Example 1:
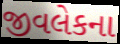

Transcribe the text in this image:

જીવલેકના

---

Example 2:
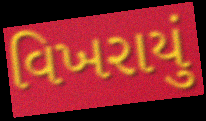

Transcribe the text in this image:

વિખરાયું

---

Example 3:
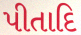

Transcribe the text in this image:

પીતાદિ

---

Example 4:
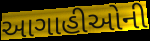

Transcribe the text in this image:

આગાહીઓની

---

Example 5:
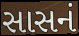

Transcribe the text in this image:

સાસનં